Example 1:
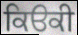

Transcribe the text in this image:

ਕਿੳਕੀ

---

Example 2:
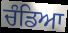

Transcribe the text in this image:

ਚੰਡਿਆ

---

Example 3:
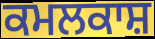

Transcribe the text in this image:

ਕਮਲਕਾਸ਼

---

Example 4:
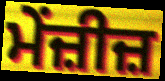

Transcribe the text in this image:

ਮੇਂਜ਼ੀਜ਼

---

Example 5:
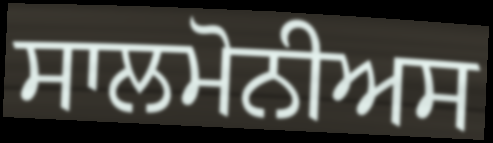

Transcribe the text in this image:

ਸਾਲਮੋਨੀਅਸ